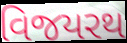
વિજયરથ